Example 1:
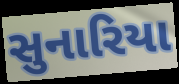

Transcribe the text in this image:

સુનારિયા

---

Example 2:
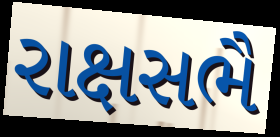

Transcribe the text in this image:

રાક્ષસભૈ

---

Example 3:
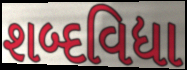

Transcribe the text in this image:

શબ્દવિદ્યા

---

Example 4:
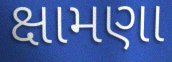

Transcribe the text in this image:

ક્ષામણા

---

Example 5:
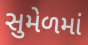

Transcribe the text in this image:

સુમેળમાં